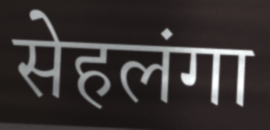
सेहलंगा